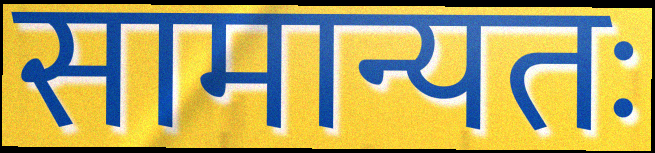
सामान्यतः